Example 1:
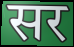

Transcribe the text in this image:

सर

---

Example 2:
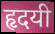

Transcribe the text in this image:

हृदयी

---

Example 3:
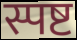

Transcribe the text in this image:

स्पष्ट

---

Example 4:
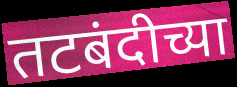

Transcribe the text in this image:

तटबंदीच्या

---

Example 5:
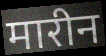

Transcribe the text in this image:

मारीन